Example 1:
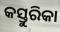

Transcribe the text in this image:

କସ୍ତୁରିକା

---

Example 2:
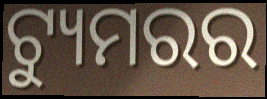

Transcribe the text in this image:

ଟ୍ୟୁମରର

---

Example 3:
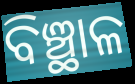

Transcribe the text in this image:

ବିଞ୍ଛାଳ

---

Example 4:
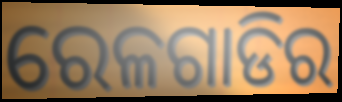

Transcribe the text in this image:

ରେଳଗାଡିର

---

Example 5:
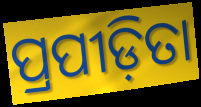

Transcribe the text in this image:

ପ୍ରପୀଡ଼ିତା